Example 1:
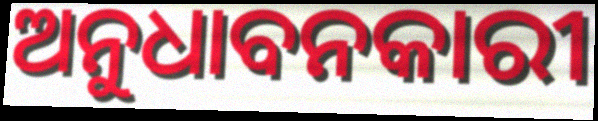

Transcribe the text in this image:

ଅନୁଧାବନକାରୀ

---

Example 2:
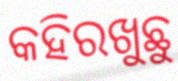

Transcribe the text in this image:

କହିରଖୁଛୁ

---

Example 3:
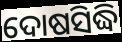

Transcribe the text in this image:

ଦୋଷସିଦ୍ଧି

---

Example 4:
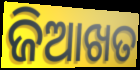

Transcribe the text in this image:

ଜିଆଖତ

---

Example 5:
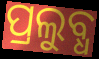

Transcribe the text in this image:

ପ୍ରଲୁବ୍ଧ